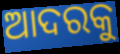
ଆଦରକୁ